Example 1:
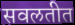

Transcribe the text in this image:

सवलतीत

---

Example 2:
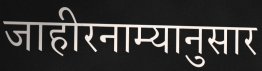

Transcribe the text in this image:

जाहीरनाम्यानुसार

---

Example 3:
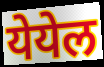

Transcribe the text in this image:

येयेल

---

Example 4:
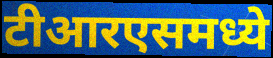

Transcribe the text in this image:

टीआरएसमध्ये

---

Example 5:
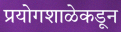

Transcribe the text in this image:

प्रयोगशाळेकडून